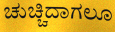
ಚುಚ್ಚಿದಾಗಲೂ